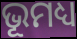
ଭୂମଧ୍ୟ